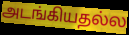
அடங்கியதல்ல